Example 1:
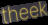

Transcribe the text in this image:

theek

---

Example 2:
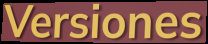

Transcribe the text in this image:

Versiones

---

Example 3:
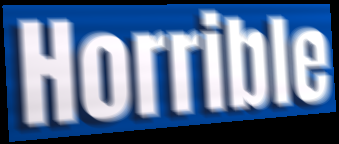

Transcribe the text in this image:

Horrible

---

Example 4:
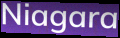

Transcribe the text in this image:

Niagara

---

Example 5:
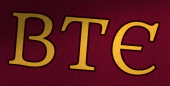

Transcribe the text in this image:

BTE